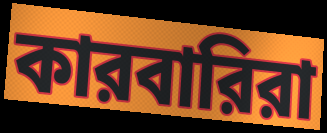
কারবারিরা